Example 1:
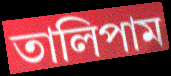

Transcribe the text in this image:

তালিপাম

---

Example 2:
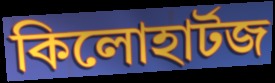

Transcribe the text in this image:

কিলোহার্টজ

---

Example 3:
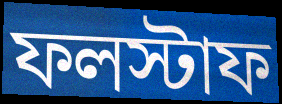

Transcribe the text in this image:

ফলস্টাফ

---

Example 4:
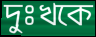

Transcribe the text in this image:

দুঃখকে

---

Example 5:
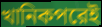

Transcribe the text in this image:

খানিকপরেই